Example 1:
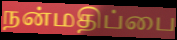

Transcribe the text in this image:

நன்மதிப்பை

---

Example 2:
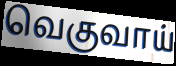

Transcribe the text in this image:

வெகுவாய்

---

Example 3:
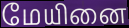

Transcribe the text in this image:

மேயினை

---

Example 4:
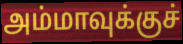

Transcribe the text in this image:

அம்மாவுக்குச்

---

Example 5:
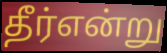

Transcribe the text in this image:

தீர்என்று